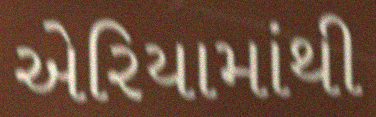
એરિયામાંથી